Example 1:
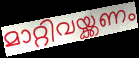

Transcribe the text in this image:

മാറ്റിവയ്ക്കണം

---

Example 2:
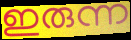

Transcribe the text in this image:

ഇരുന്ന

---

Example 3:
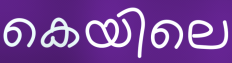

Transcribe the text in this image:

കെയിലെ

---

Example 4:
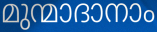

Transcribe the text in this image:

മുന്മാദാനാം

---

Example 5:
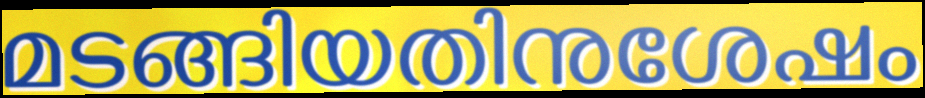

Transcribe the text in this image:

മടങ്ങിയതിനുശേഷം